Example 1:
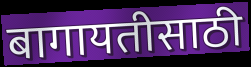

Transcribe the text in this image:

बागायतीसाठी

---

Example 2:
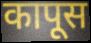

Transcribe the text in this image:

कापूस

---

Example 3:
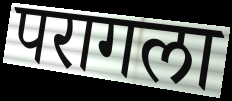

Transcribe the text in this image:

परागला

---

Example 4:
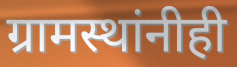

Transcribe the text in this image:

ग्रामस्थांनीही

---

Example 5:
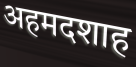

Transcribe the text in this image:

अहमदशाह